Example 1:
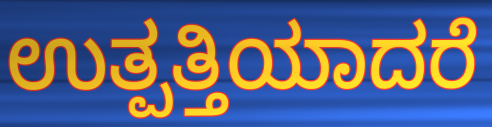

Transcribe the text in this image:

ಉತ್ಪತ್ತಿಯಾದರೆ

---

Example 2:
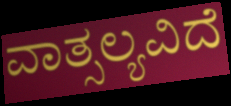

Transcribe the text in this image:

ವಾತ್ಸಲ್ಯವಿದೆ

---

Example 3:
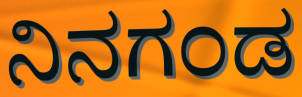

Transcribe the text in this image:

ನಿನಗಂಡ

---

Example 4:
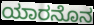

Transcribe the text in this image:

ಯಾರನೊನ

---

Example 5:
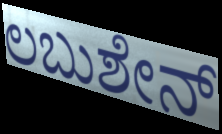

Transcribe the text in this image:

ಲಬುಶೇನ್